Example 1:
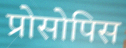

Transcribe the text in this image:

प्रोसोपिस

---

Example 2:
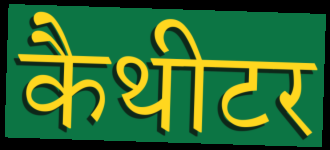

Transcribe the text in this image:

कैथीटर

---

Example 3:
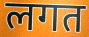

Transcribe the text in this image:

लगत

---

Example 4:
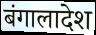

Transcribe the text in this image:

बंगालादेश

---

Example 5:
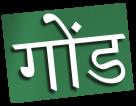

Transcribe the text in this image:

गोंड